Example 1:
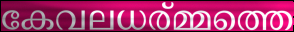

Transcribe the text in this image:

കേവലധര്മ്മത്തെ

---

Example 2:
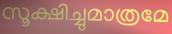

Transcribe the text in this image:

സൂക്ഷിച്ചുമാത്രമേ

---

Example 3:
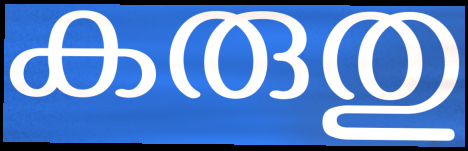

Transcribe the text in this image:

കരുതു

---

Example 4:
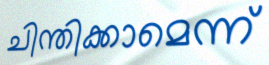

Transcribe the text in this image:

ചിന്തിക്കാമെന്ന്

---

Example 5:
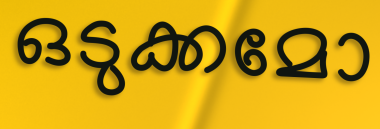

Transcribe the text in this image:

ഒടുക്കമോ